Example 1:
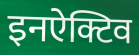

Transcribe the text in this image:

इनऐक्टिव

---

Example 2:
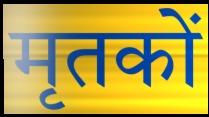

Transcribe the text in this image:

मृतकों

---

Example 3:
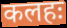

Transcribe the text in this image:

कलहः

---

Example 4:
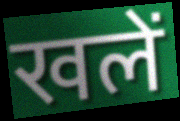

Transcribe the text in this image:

खलें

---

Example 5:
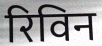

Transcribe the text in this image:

रिविन